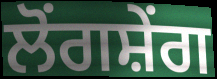
ਲੋਂਗਸ਼ੇਂਗ